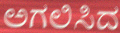
ಅಗಲಿಸಿದ